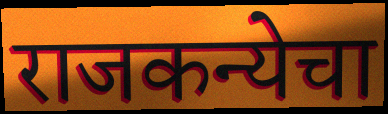
राजकन्येचा